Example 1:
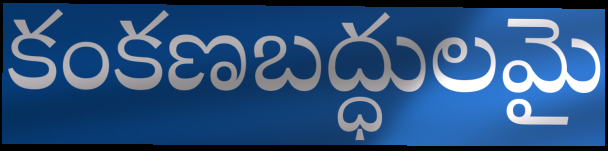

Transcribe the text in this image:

కంకణబద్ధులమై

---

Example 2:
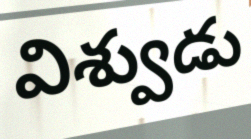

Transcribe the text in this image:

విశ్వుడు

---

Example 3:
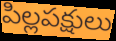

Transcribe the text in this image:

పిల్లపక్షులు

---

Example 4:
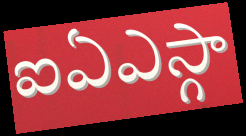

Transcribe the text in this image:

ఐఏఎస్గా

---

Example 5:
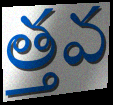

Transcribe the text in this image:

త్తవ